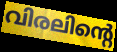
വിരലിന്റെ